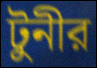
টুনীর